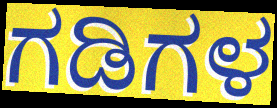
ಗಡಿಗಳ